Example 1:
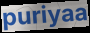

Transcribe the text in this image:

puriyaa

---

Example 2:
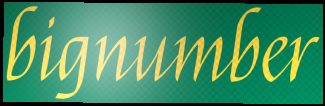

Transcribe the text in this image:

bignumber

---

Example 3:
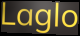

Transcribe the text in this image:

Laglo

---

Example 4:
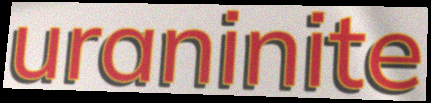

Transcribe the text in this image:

uraninite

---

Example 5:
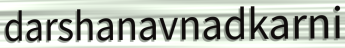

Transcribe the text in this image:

darshanavnadkarni